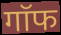
गॉफ